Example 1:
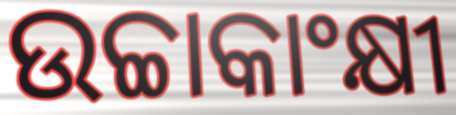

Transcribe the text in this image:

ଉଚ୍ଚାକାଂକ୍ଷୀ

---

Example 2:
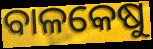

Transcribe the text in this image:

ବାଳକେଷୁ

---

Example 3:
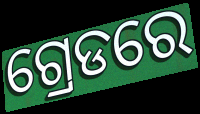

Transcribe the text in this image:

ଗ୍ରେଡରେ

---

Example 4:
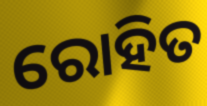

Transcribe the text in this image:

ରୋହିତ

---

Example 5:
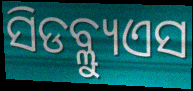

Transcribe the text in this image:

ସିଡବ୍ଲ୍ୟୁଏସ